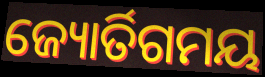
ଜ୍ୟୋର୍ତିଗମୟ